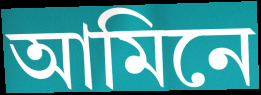
আমিনে